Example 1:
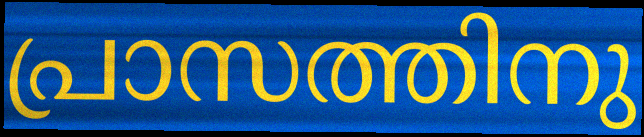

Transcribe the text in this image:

പ്രാസത്തിനു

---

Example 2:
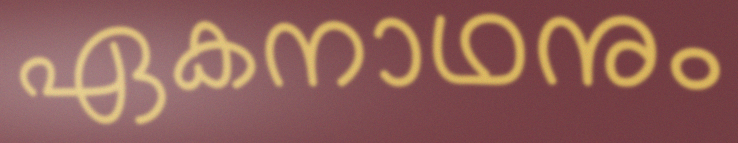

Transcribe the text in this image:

ഏകനാഥനും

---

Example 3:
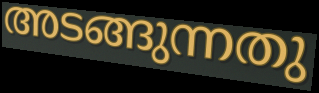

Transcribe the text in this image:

അടങ്ങുന്നതു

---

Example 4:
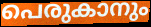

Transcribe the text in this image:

പെരുകാനും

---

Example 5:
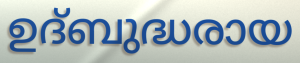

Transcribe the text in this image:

ഉദ്ബുദ്ധരായ